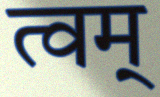
त्वम्